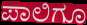
ಪಾಲಿಗೂ